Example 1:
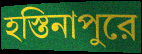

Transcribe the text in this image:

হস্তিনাপুরে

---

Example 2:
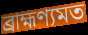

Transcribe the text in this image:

ব্রাহ্মণ্যমত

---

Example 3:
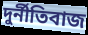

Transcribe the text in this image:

দুর্নীতিবাজ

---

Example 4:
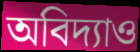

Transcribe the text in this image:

অবিদ্যাও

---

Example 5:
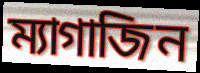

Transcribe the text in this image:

ম্যাগাজিন